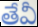
తేవీ